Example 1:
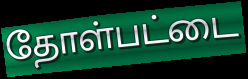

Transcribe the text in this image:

தோள்பட்டை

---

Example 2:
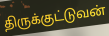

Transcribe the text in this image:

திருக்குட்டுவன்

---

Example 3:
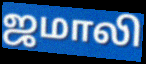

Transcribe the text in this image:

ஜமாலி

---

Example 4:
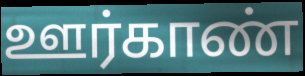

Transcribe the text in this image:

ஊர்காண்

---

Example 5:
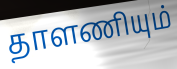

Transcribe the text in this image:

தாளணியும்